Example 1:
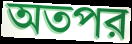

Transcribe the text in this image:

অতপর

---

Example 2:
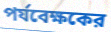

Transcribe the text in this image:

পর্যবেক্ষকের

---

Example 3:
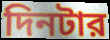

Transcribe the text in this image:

দিনটার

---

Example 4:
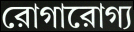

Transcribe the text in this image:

রোগারোগ্য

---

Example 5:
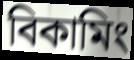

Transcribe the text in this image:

বিকামিং